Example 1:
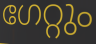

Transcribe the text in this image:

ഗേറ്റും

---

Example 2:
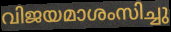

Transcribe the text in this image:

വിജയമാശംസിച്ചു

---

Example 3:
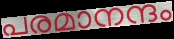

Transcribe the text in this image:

പരമാനന്ദം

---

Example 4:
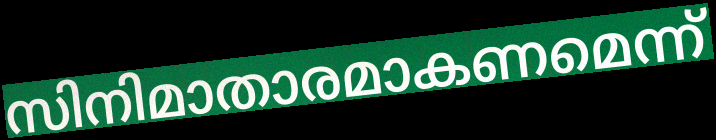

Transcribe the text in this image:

സിനിമാതാരമാകണമെന്ന്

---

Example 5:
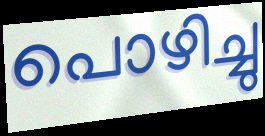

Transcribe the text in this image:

പൊഴിച്ചു